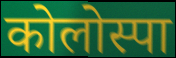
कोलोस्पा